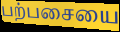
பற்பசையை